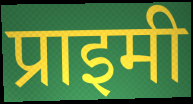
प्राइमी